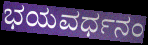
ಭಯವರ್ಧನಂ